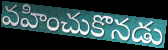
వహించుకొనడు